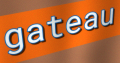
gateau